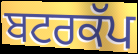
ਬਟਰਕੱਪ